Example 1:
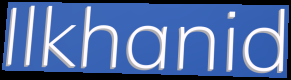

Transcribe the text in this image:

Ilkhanid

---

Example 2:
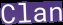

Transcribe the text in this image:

Clan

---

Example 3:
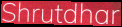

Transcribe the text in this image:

Shrutdhar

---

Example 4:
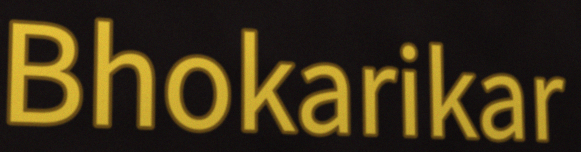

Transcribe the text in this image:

Bhokarikar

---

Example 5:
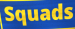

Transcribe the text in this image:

Squads